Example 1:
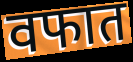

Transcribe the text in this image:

वफात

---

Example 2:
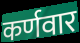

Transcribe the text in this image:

कर्णवार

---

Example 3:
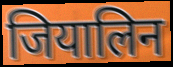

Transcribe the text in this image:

जियालिन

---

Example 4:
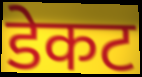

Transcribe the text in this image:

डेकट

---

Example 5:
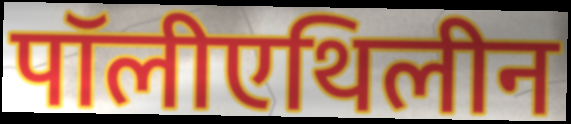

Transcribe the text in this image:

पॉलीएथिलीन